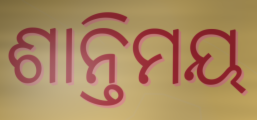
ଶାନ୍ତିମୟ